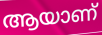
ആയാണ്